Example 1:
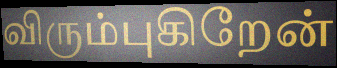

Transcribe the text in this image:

விரும்புகிறேன்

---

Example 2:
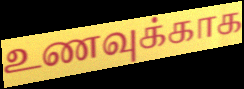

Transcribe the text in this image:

உணவுக்காக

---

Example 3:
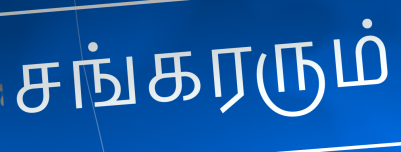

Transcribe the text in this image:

சங்கரரும்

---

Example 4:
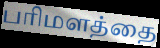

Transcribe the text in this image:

பரிமளத்தை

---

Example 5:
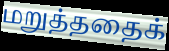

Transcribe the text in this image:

மறுத்ததைக்